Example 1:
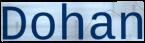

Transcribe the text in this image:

Dohan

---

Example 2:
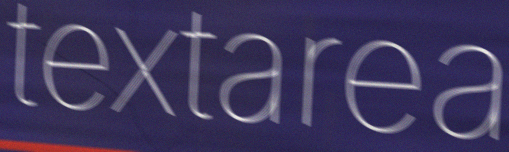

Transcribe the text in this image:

textarea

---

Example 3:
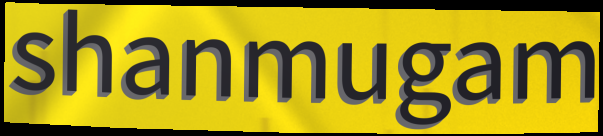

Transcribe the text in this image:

shanmugam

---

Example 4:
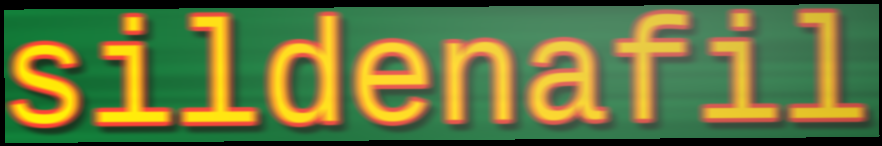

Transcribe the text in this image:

sildenafil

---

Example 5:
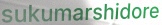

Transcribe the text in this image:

sukumarshidore